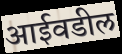
आईवडील